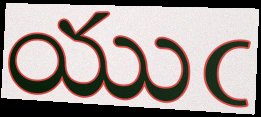
యుఁ